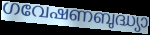
ഗവേഷണബുദ്ധ്യാ